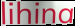
lihina